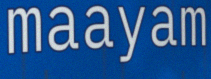
maayam